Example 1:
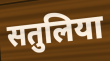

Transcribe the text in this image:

सतुलिया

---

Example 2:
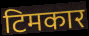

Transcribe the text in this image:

टिमकार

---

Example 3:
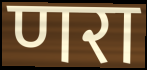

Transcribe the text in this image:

णरा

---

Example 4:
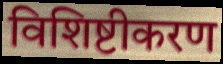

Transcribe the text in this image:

विशिष्टीकरण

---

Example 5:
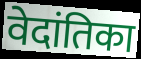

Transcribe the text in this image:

वेदांतिका